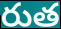
రుత